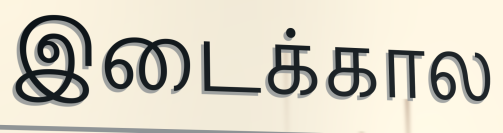
இடைக்கால